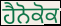
ਹੈਨੋਕੋਕ